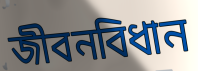
জীবনবিধান